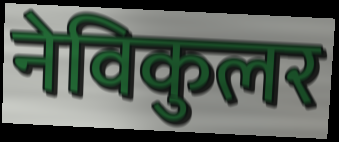
नेविकुलर